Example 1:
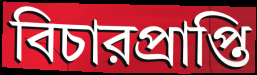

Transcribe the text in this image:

বিচারপ্রাপ্তি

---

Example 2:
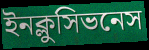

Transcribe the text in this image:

ইনক্লুসিভনেস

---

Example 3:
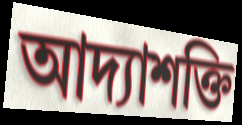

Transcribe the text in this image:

আদ্যাশক্তি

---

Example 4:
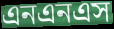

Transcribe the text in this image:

এনএনএস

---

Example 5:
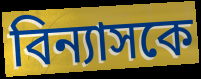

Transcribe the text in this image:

বিন্যাসকে